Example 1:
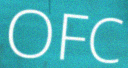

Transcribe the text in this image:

OFC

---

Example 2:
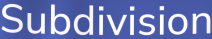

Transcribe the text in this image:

Subdivision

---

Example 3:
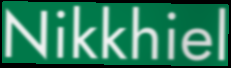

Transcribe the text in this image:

Nikkhiel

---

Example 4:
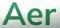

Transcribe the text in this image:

Aer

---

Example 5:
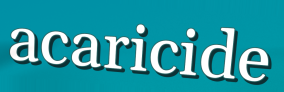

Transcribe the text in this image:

acaricide